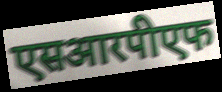
एसआरपीएफ